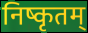
निष्कृतम्